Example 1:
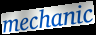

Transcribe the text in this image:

mechanic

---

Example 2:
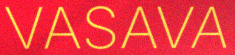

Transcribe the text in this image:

VASAVA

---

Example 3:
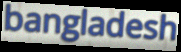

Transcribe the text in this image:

bangladesh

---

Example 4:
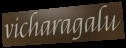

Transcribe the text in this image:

vicharagalu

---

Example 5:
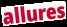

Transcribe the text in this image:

allures